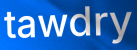
tawdry